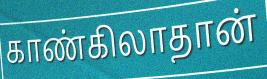
காண்கிலாதான்